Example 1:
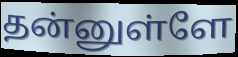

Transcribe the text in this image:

தன்னுள்ளே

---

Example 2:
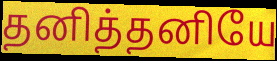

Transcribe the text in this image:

தனித்தனியே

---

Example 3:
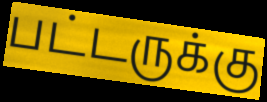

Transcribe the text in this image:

பட்டருக்கு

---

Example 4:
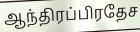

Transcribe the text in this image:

ஆந்திரப்பிரதேச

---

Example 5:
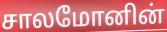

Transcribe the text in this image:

சாலமோனின்